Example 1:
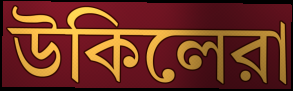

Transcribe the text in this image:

উকিলেরা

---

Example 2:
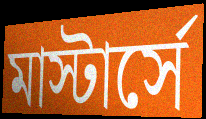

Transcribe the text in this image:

মাস্টার্সে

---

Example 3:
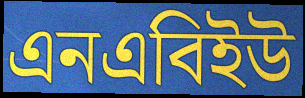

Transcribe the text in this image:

এনএবিইউ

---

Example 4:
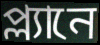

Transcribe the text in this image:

প্ল্যানে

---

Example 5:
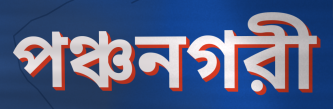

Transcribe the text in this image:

পঞ্চনগরী